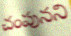
చంపునని